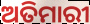
ଅତିମାରୀ